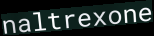
naltrexone